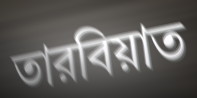
তারবিয়াত